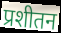
प्रशीतन